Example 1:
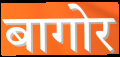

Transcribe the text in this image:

बागोर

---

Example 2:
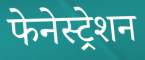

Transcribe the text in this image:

फेनेस्ट्रेशन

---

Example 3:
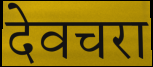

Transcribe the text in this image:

देवचरा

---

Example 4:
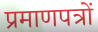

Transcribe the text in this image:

प्रमाणपत्रों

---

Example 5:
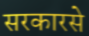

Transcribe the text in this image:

सरकारसे